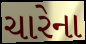
ચારેના